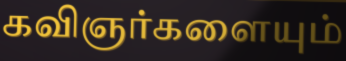
கவிஞர்களையும்